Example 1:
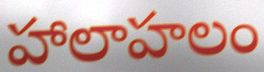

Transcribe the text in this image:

హాలాహలం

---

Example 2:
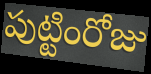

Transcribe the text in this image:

పుట్టింరోజు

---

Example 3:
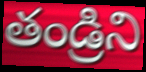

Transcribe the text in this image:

తండ్రిని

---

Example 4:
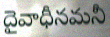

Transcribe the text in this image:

దైవాధీనమనీ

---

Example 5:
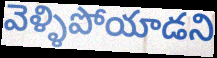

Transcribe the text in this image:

వెళ్ళిపోయాడని